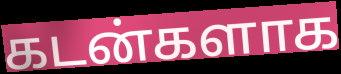
கடன்களாக